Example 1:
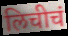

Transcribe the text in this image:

लिचीचं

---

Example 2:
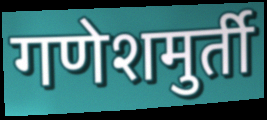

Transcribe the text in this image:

गणेशमुर्ती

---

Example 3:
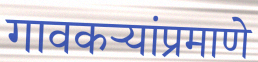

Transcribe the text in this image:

गावकऱ्यांप्रमाणे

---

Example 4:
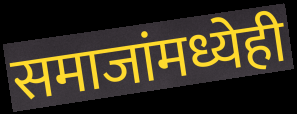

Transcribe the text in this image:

समाजांमध्येही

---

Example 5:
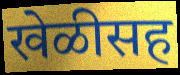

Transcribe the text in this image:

खेळीसह